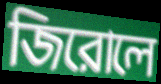
জিরোলে